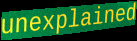
unexplained